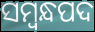
ସମ୍ବନ୍ଧପଦ